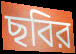
ছবির